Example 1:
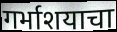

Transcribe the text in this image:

गर्भाशयाचा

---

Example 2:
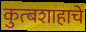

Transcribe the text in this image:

कुत्बशाहाचे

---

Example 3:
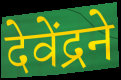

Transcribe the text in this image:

देवेंद्रने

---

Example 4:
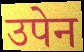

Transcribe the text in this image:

उपेन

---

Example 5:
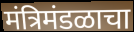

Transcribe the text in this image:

मंत्रिमंडळाचा